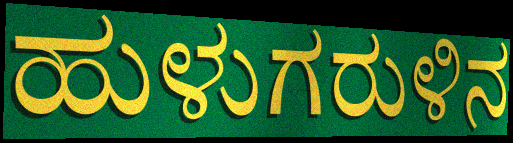
ಹುಳುಗರುಳಿನ